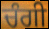
ਚੰਗੀ